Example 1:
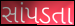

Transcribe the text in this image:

સાંપડતા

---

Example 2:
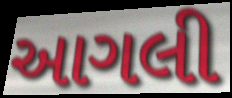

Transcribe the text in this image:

આગલી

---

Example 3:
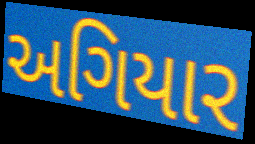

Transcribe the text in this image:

અગિયાર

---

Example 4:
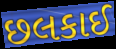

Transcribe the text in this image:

છલકાઈ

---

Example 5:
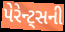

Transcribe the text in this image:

પેરેન્ટ્સની